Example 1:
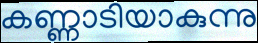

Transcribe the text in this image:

കണ്ണാടിയാകുന്നു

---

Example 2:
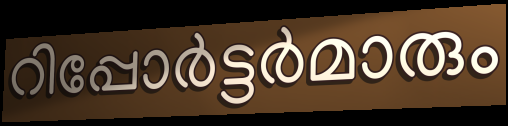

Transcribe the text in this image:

റിപ്പോർട്ടർമാരും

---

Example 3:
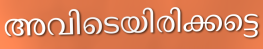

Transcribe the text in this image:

അവിടെയിരിക്കട്ടെ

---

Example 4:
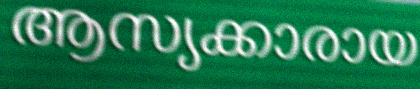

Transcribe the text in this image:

ആസ്യക്കാരായ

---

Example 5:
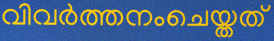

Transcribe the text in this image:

വിവർത്തനംചെയ്തത്